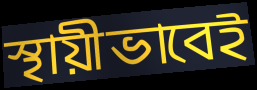
স্থায়ীভাবেই